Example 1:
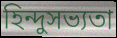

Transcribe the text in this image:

হিন্দুসভ্যতা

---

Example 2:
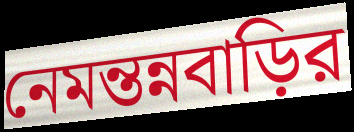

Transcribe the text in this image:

নেমন্তন্নবাড়ির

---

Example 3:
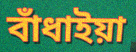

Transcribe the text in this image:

বাঁধাইয়া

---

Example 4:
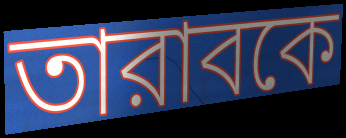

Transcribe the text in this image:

তারাবকে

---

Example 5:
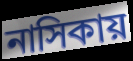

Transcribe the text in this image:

নাসিকায়